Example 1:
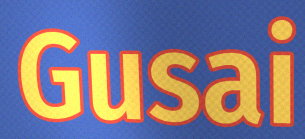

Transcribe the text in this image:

Gusai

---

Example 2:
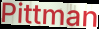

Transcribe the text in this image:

Pittman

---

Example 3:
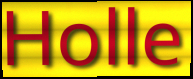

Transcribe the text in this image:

Holle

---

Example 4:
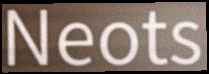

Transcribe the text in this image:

Neots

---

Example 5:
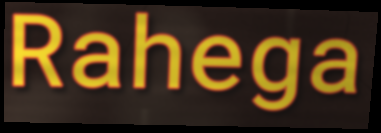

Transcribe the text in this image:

Rahega